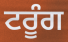
ਟਰੂੰਗ